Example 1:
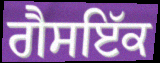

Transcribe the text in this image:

ਗੈਸਇੱਕ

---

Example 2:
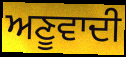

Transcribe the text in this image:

ਅਣੂਵਾਦੀ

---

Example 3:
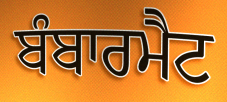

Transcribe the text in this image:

ਬੰਬਾਰਮੈਟ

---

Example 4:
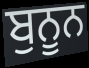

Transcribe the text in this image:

ਬੁਨੂਨ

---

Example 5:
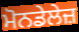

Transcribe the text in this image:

ਮੋਨਡੇਲੇਜ਼